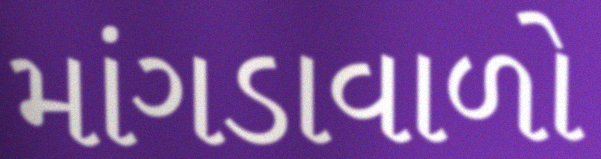
માંગડાવાળો